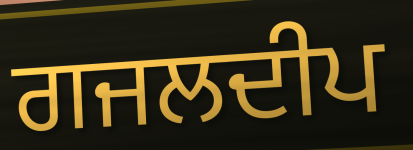
ਗਜਲਦੀਪ